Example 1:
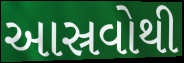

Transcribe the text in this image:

આસ્રવોથી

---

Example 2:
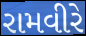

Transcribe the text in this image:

રામવીરે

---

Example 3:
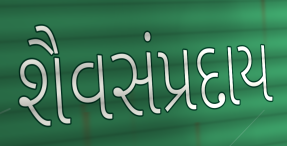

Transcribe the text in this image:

શૈવસંપ્રદાય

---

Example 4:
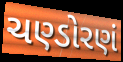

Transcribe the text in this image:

ચણ્ડોરણં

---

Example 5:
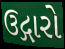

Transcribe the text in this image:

ઉદ્ગારો